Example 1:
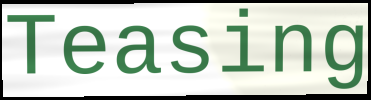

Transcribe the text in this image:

Teasing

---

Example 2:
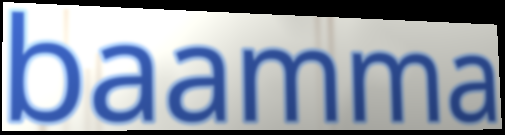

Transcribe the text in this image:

baamma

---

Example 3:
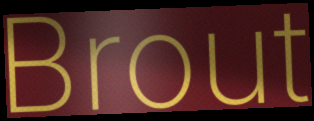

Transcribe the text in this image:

Brout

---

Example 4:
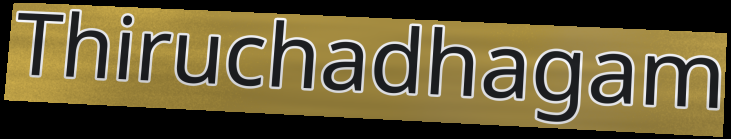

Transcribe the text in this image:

Thiruchadhagam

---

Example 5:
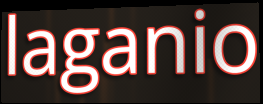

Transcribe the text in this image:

laganio